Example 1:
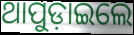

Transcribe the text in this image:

ଥାପୁଡ଼ାଇଲେ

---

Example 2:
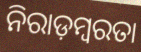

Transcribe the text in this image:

ନିରାଡ଼ମ୍ବରତା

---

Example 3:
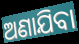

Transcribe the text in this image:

ଅଣାଯିବା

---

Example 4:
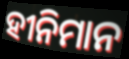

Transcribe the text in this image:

ହୀନିମାନ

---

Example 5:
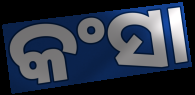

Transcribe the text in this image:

କଂସା